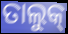
ତାଲୁକ୍